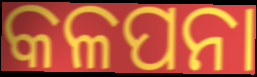
କଳପନା